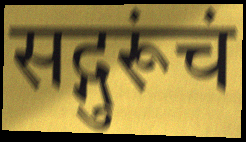
सद्गुरूंचं